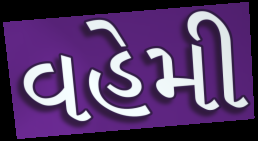
વહેમી